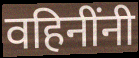
वहिनींनी